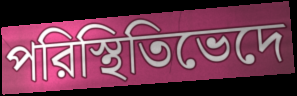
পরিস্থিতিভেদে